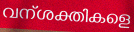
വന്ശക്തികളെ